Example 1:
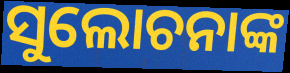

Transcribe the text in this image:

ସୁଲୋଚନାଙ୍କ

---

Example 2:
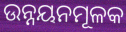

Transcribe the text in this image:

ଉନ୍ନୟନମୂଳକ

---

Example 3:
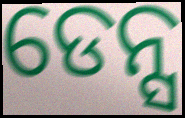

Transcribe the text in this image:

ଡେନ୍ସ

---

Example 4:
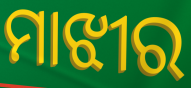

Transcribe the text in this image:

ମାଝୀର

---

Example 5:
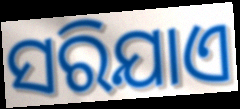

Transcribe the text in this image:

ସରିଯାଏ